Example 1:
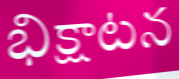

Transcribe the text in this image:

భిక్షాటన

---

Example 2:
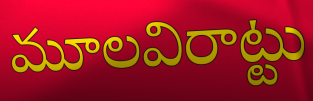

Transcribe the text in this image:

మూలవిరాట్టు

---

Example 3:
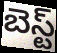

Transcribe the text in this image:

బెస్ట్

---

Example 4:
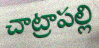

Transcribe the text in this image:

చాట్రాపల్లి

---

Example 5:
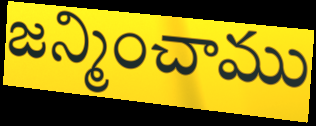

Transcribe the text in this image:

జన్మించాము